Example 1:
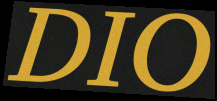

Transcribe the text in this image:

DIO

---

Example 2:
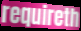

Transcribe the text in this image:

requireth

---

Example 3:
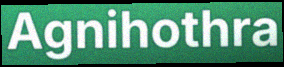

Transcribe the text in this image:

Agnihothra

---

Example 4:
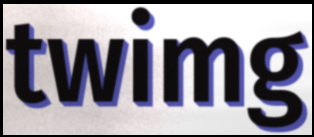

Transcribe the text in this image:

twimg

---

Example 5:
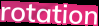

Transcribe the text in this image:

rotation